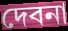
দেবনা